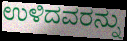
ಉಳಿದವರನ್ನು